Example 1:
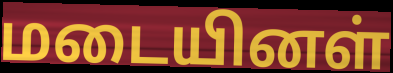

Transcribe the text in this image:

மடையினள்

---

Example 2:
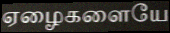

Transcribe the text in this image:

ஏழைகளையே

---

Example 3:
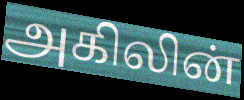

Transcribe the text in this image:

அகிலின்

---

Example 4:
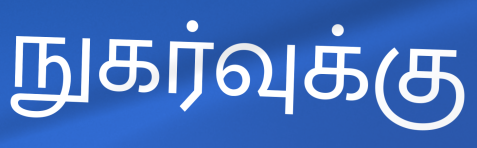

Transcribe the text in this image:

நுகர்வுக்கு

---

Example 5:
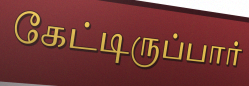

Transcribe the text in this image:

கேட்டிருப்பார்